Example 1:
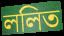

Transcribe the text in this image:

ললিত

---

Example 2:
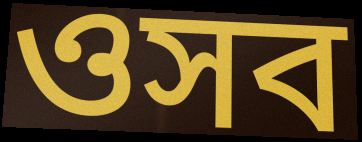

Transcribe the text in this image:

ওসব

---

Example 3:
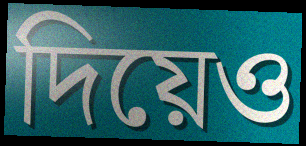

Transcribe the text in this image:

দিয়েও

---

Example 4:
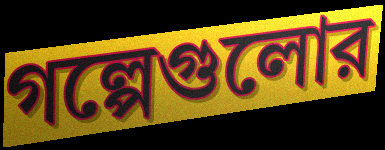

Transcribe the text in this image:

গল্পেগুলোর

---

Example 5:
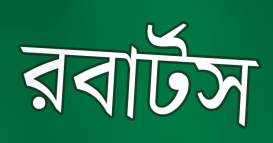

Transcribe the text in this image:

রবার্টস